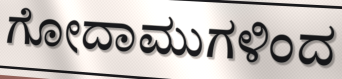
ಗೋದಾಮುಗಳಿಂದ